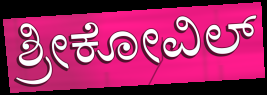
ಶ್ರೀಕೋವಿಲ್